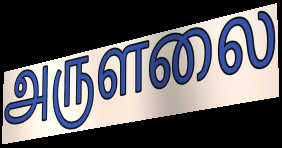
அருளலை